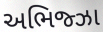
અભિજ્ઝા